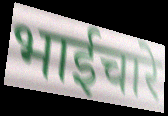
भाईचारे